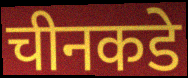
चीनकडे